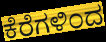
ಕೆರೆಗಳಿಂದ